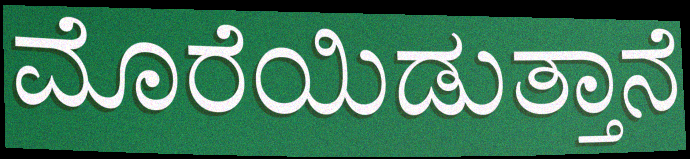
ಮೊರೆಯಿಡುತ್ತಾನೆ